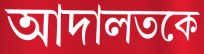
আদালতকে